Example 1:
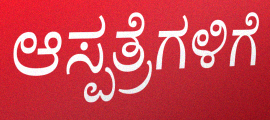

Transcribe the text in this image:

ಆಸ್ಪತ್ರೆಗಳಿಗೆ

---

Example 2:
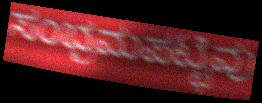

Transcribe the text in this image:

ಸಂಭ್ರಮಪಟ್ಟೆವು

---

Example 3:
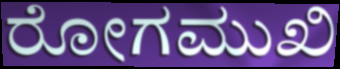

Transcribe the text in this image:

ರೋಗಮುಖಿ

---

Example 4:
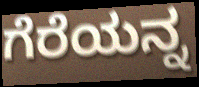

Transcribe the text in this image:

ಗೆರೆಯನ್ನ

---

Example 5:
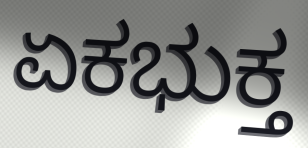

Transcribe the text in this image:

ಏಕಭುಕ್ತ